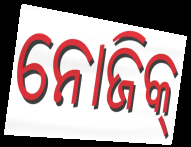
ନୋଜିକ୍